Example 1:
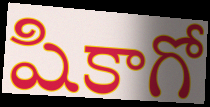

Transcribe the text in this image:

షికాగో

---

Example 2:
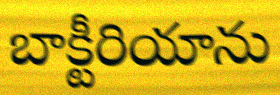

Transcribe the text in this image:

బాక్టీరియాను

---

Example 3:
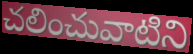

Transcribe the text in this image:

చలించువాటిని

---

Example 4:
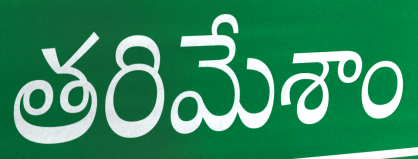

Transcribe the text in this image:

తరిమేశాం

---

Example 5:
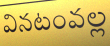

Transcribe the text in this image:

వినటంవల్ల